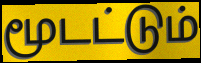
மூடட்டும்